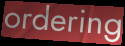
ordering